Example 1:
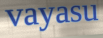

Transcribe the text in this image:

vayasu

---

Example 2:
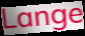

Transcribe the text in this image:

Lange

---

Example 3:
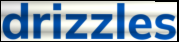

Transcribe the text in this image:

drizzles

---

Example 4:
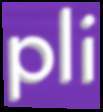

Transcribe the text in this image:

pli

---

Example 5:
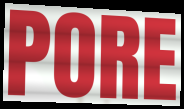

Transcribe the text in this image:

PORE